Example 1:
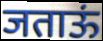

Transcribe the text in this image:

जताऊं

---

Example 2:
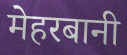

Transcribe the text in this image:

मेहरबानी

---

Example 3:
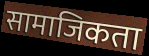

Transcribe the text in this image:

सामाजिकता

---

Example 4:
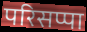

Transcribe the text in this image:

परिसप्पा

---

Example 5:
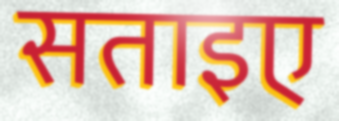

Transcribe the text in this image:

सताइए